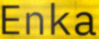
Enka